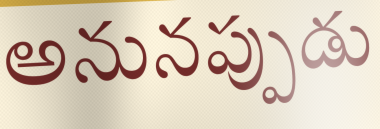
అనునప్పుడు